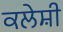
ਕਲੇਸ਼ੀ